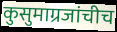
कुसुमाग्रजांचीच